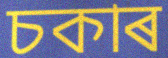
চকাৰ